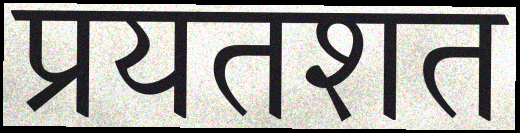
प्रयतशत